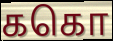
ககொ